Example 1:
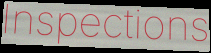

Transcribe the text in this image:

Inspections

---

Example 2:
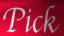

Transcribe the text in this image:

Pick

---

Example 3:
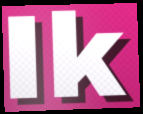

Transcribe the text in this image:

Ik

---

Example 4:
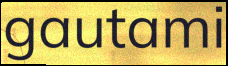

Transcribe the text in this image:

gautami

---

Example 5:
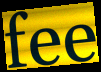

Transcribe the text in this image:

fee